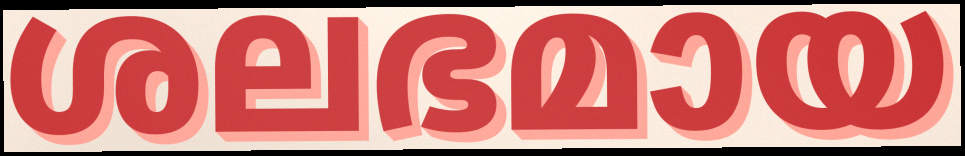
ശലഭമായ